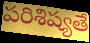
పరిశిష్యతే